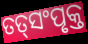
ତତ୍‌ସଂପୃକ୍ତ